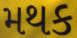
મથક